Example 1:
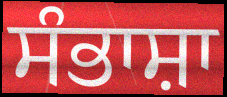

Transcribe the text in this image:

ਸੰਭਾਸ਼ਾ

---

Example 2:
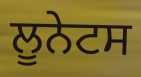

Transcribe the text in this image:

ਲੂਨੇਟਸ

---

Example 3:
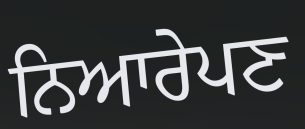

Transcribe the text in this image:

ਨਿਆਰੇਪਣ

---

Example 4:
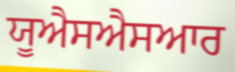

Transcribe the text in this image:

ਯੂਐਸਐਸਆਰ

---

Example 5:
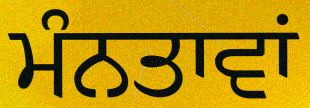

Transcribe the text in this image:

ਮੰਨਤਾਵਾਂ